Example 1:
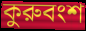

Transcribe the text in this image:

কুরুবংশ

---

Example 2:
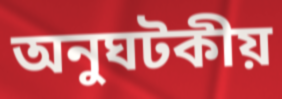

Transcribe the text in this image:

অনুঘটকীয়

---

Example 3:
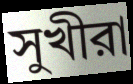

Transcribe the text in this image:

সুখীরা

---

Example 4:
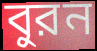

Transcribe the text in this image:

বুরন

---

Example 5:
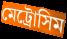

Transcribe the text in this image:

মেট্রোসিম